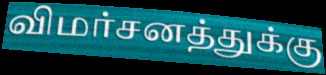
விமர்சனத்துக்கு